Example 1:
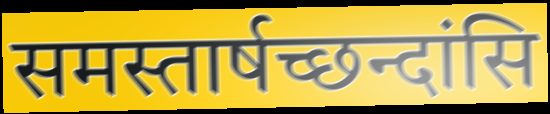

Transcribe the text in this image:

समस्तार्षच्छन्दांसि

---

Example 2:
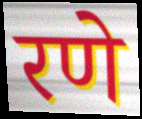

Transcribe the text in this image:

रणे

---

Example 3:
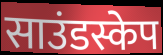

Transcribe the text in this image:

साउंडस्केप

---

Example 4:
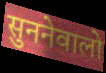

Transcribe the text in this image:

सुननेवालो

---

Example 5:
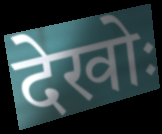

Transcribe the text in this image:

देखोः